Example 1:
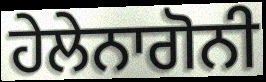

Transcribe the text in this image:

ਹੇਲੇਨਾਗੋਨੀ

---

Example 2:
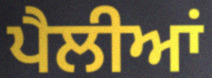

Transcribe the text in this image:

ਪੈਲੀਆਂ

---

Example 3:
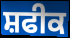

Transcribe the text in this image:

ਸ਼ਫੀਕ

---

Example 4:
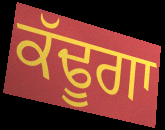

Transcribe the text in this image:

ਕੱਢੂਗਾ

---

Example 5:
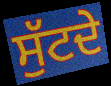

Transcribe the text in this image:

ਸੁੱਟਦੇ